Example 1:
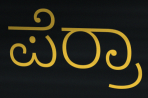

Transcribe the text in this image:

ಪೆರ್ರಾ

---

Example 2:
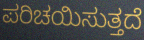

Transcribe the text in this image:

ಪರಿಚಯಿಸುತ್ತದೆ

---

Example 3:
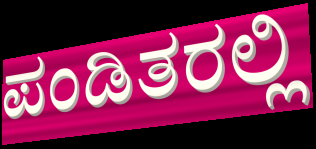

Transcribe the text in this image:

ಪಂಡಿತರಲ್ಲಿ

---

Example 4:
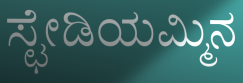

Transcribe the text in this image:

ಸ್ಟೇಡಿಯಮ್ಮಿನ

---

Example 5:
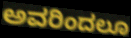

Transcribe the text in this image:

ಅವರಿಂದಲೂ